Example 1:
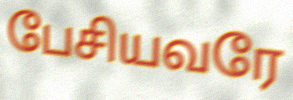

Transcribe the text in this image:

பேசியவரே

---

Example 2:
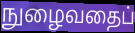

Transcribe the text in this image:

நுழைவதைப்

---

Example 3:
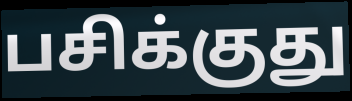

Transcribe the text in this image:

பசிக்குது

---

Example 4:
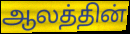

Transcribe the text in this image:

ஆலத்தின்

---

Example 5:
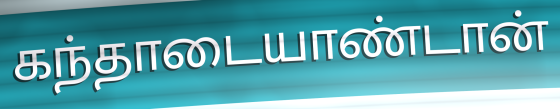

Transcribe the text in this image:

கந்தாடையாண்டான்